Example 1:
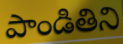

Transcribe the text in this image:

పాండితిని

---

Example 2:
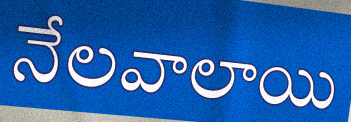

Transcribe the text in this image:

నేలవాలాయి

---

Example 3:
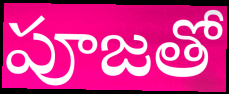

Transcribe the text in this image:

పూజతో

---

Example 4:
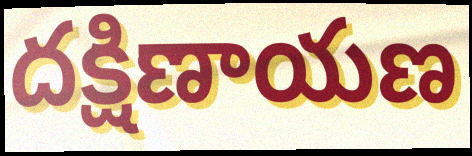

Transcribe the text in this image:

దక్షిణాయణ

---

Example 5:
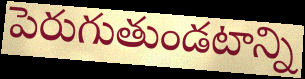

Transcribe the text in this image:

పెరుగుతుండటాన్ని